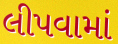
લીપવામાં